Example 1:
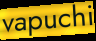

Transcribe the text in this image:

vapuchi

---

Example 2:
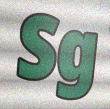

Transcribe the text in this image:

Sg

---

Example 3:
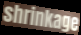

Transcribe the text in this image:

shrinkage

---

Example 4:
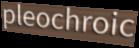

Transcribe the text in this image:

pleochroic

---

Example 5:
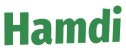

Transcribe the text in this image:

Hamdi